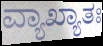
ವ್ಯಾಖ್ಯಾತಃ